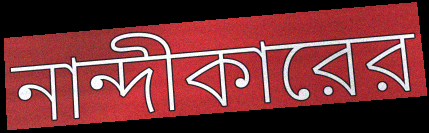
নান্দীকারের